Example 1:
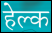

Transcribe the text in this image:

हेल्क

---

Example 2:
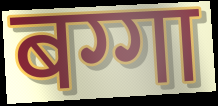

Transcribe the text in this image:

बग्गा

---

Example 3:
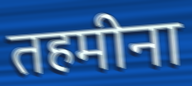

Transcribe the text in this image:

तहमीना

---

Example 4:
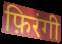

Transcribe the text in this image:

फ़िरंगी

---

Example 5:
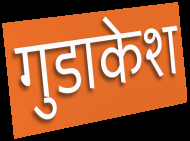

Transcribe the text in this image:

गुडाकेश